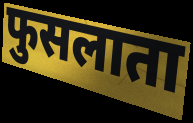
फुसलाता